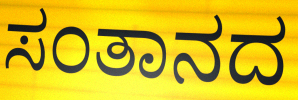
ಸಂತಾನದ